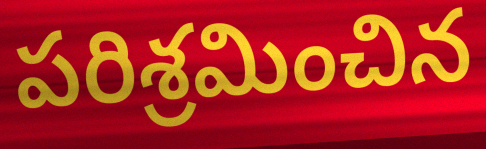
పరిశ్రమించిన